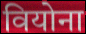
वियोना